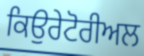
ਕਿਉਰੇਟੋਰੀਅਲ